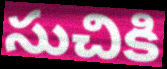
సుచికి